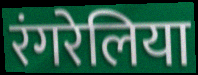
रंगरेलिया